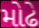
મોઢે